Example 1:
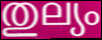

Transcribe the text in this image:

തുല്യം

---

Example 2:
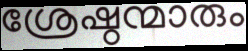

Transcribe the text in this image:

ശ്രേഷ്ഠന്മാരും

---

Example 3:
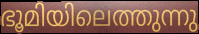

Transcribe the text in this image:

ഭൂമിയിലെത്തുന്നു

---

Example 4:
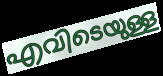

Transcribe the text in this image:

എവിടെയുള്ള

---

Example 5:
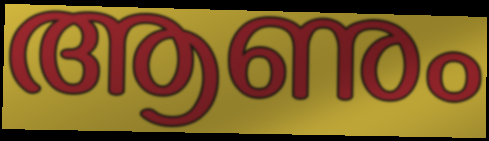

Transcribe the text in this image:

ആണും